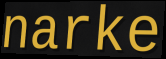
narke